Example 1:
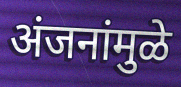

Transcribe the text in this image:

अंजनांमुळे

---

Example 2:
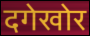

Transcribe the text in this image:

दगेखोर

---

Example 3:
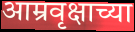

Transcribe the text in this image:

आम्रवृक्षाच्या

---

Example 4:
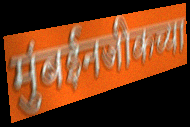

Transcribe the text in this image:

मुंबईनजीकच्या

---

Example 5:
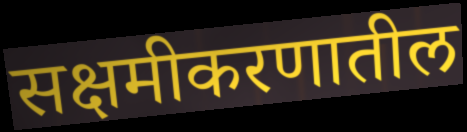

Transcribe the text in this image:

सक्षमीकरणातील